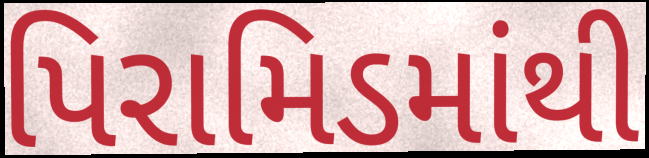
પિરામિડમાંથી